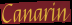
Canarin